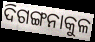
ଦିଗଙ୍ଗନାକୁଳ